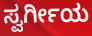
ಸ್ವರ್ಗೀಯ